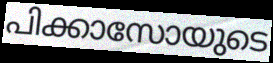
പിക്കാസോയുടെ